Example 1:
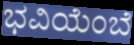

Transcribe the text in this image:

ಭವಿಯೆಂಬೆ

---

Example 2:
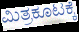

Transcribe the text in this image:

ಮಿತ್ರಕೂಟಕ್ಕೆ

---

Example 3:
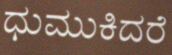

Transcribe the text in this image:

ಧುಮುಕಿದರೆ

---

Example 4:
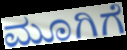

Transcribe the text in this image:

ಮೂಗಿಗೆ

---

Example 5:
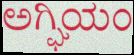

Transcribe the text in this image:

ಅಗ್ಘಿಯಂ